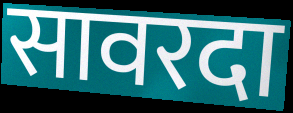
सावरदा